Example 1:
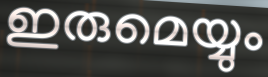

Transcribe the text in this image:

ഇരുമെയ്യും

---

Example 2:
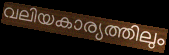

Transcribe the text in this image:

വലിയകാര്യത്തിലും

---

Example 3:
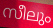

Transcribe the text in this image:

സീലും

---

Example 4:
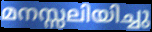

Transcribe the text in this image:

മനസ്സലിയിച്ചു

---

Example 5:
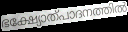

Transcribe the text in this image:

ഭക്ഷ്യോത്പാദനത്തിൽ